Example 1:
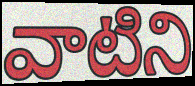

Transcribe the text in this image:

వాటిని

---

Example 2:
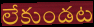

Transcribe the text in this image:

లేకుండట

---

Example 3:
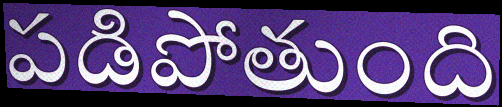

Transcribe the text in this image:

పడిపోతుంది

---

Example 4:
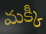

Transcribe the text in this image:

మక్కీ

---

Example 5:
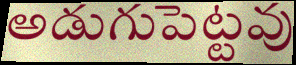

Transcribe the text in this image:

అడుగుపెట్టవు